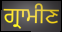
ਗ੍ਰਾਮੀਣ